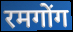
रमगोंग